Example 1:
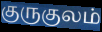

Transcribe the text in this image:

குருகுலம்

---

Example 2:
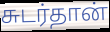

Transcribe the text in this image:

சுடர்தான்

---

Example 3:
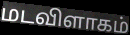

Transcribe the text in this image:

மடவிளாகம்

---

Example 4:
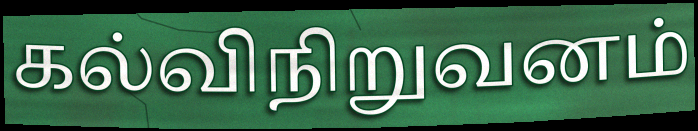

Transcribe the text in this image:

கல்விநிறுவனம்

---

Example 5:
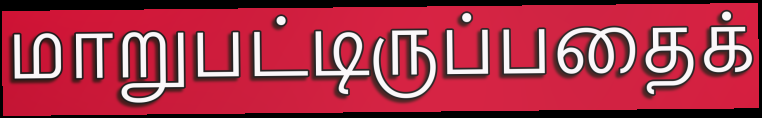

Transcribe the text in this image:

மாறுபட்டிருப்பதைக்